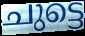
ചുട്ടെ